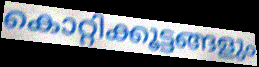
കൊറ്റിക്കൂട്ടങ്ങളും